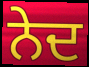
ਨੇਦ